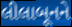
લીલાબૂનને